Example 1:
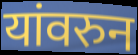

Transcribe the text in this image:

यांवरुन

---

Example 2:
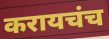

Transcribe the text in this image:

करायचंच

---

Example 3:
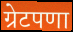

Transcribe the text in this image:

ग्रेटपणा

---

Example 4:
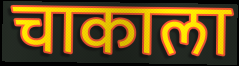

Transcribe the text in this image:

चाकाला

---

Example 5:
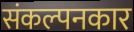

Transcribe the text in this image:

संकल्पनकार